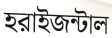
হরাইজন্টাল